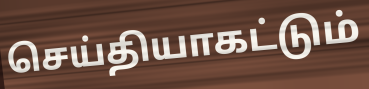
செய்தியாகட்டும்